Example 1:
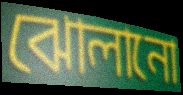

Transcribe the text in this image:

ঝোলানো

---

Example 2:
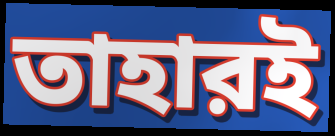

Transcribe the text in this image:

তাহারই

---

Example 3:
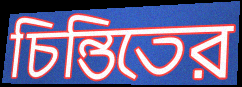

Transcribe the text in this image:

চিন্তিতের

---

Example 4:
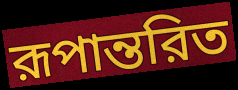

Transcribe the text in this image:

রূপান্তরিত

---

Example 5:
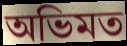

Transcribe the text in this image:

অভিমত